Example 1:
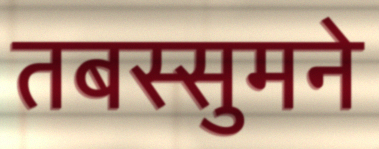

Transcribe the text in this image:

तबस्सुमने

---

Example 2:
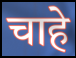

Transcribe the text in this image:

चाहे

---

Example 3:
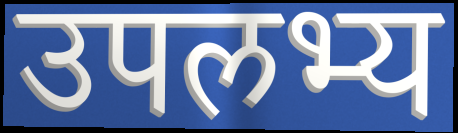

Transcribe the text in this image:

उपलभ्य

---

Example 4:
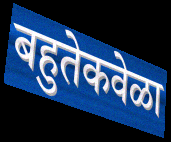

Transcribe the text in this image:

बहुतेकवेळा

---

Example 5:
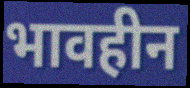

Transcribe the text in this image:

भावहीन